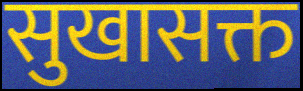
सुखासक्त